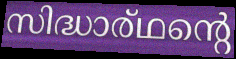
സിദ്ധാര്ഥന്റെ